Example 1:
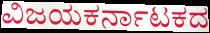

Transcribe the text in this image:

ವಿಜಯಕರ್ನಾಟಕದ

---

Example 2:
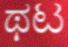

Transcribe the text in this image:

ಥಟ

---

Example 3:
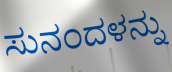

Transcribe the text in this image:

ಸುನಂದಳನ್ನು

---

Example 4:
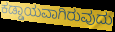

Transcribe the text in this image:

ಕಡ್ಡಾಯವಾಗಿರುವುದು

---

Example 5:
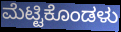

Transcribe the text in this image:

ಮೆಟ್ಟಿಕೊಂಡಳು